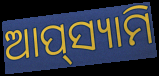
ଆପ୍‌ସ୍ୟାମି